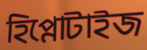
হিপ্নোটাইজ